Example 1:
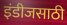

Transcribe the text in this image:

इंडीजसाठी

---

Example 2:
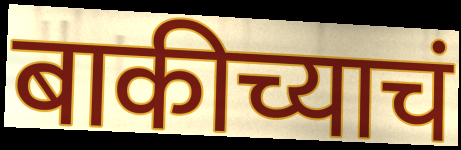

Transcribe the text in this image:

बाकीच्याचं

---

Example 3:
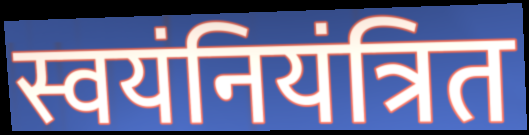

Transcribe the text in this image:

स्वयंनियंत्रित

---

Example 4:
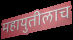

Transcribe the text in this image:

महायुतीलाच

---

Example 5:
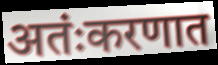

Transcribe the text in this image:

अतंःकरणात